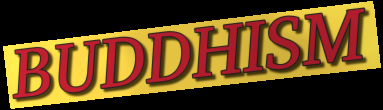
BUDDHISM